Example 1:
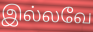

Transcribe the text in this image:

இல்லவே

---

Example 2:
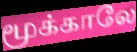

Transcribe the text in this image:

மூக்காலே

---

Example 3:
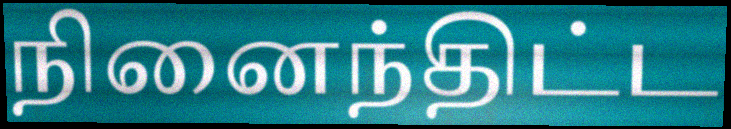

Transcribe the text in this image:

நினைந்திட்ட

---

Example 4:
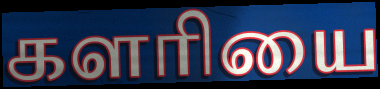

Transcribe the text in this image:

களரியை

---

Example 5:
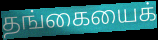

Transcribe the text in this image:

தங்கையைக்